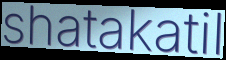
shatakatil